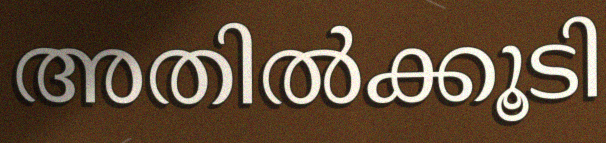
അതിൽക്കൂടി